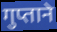
गुप्ताने